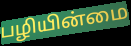
பழியின்மை